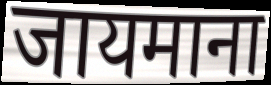
जायमाना